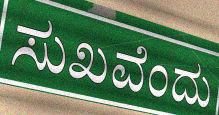
ಸುಖವೆಂದು